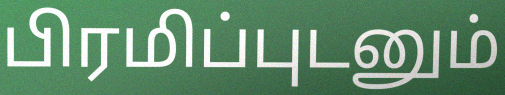
பிரமிப்புடனும்